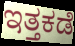
ಇತ್ತಕಡೆ